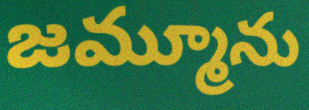
జమ్మూను